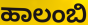
ಹಾಲಂಬಿ